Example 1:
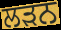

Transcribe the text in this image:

ਲੜਨ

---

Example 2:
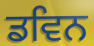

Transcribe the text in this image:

ਡਵਿਨ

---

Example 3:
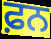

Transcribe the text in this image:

ਫ਼ਨ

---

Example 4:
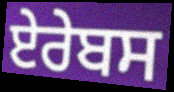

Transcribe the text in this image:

ਏਰੇਬਸ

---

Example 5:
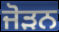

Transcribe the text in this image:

ਜੋੜਨ